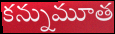
కన్నుమూత